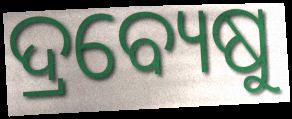
ଦ୍ରବ୍ୟେଷୁ